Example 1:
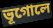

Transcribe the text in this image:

ভূগোলে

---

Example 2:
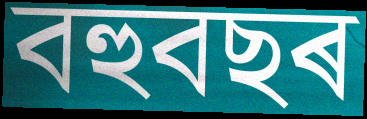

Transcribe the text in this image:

বহুবছৰ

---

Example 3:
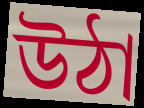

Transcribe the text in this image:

উঠা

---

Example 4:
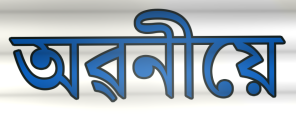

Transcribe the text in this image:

অৱনীয়ে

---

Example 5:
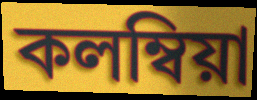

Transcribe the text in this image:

কলম্বিয়া